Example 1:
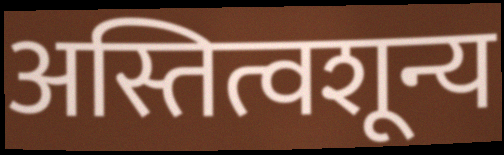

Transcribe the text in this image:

अस्तित्वशून्य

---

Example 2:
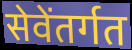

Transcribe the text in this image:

सेवेंतर्गत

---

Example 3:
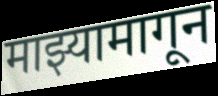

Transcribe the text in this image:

माझ्यामागून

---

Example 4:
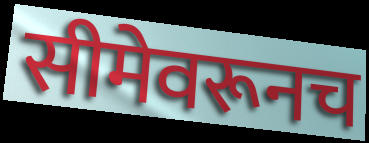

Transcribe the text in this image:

सीमेवरूनच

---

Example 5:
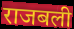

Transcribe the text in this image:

राजबली